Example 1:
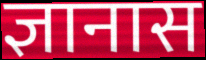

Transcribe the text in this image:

ज्ञानास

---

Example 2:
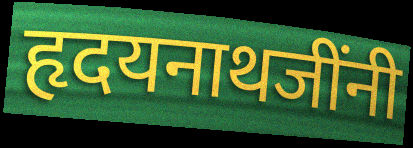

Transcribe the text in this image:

हृदयनाथजींनी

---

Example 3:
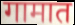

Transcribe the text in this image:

गामात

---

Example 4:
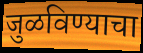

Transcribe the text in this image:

जुळविण्याचा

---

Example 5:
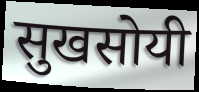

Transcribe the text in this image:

सुखसोयी